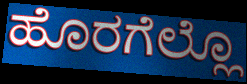
ಹೊರಗೆಲ್ಲೊ